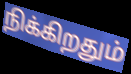
நிக்கிறதும்